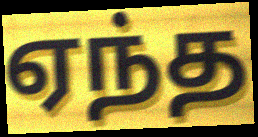
ஏந்த